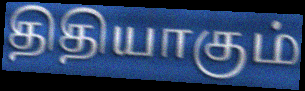
திதியாகும்